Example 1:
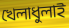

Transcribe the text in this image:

খেলাধুলাই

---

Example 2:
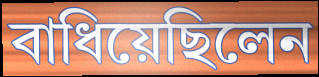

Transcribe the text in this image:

বাধিয়েছিলেন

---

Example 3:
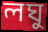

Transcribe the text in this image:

লঘু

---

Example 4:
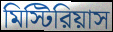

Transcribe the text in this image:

মিস্টিরিয়াস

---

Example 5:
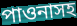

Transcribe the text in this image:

পাওনাসহ